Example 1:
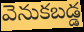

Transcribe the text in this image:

వెనుకబడ్డ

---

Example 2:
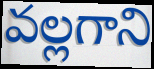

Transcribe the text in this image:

వల్లగాని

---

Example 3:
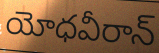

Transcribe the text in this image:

యోధవీరాన్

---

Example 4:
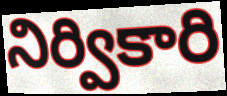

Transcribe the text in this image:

నిర్వికారి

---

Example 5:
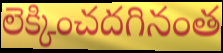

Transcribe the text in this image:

లెక్కించదగినంత